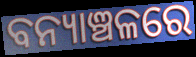
ବନ୍ୟାଞ୍ଚଳରେ